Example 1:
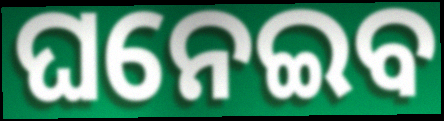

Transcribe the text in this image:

ଘନେଇବ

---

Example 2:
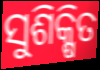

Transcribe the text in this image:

ସୁଶିକ୍ଷିତ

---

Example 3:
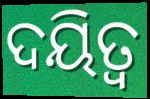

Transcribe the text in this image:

ଦୟିତ୍ୱ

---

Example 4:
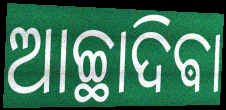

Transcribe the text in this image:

ଆଚ୍ଛାଦିଵା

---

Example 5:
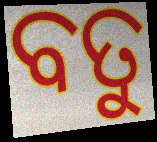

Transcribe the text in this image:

ବତୁ